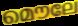
മൌലേ